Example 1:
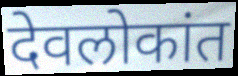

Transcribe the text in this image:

देवलोकांत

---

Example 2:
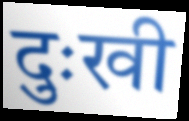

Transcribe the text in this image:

दुःखी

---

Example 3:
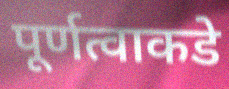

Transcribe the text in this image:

पूर्णत्वाकडे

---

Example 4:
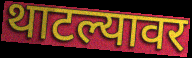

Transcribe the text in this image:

थाटल्यावर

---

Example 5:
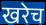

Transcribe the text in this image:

खरेच